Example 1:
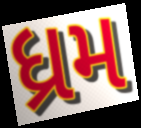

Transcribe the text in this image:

ધ્રમ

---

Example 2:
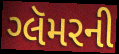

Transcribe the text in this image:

ગ્લૅમરની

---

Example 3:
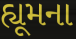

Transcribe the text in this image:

હ્યૂમના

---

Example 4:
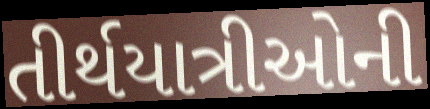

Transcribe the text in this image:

તીર્થયાત્રીઓની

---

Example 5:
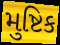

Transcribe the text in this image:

મુષ્ટિક